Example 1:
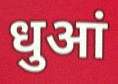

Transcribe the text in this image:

धुआं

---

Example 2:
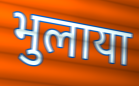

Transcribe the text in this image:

भुलाया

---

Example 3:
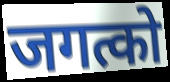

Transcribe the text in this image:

जगत्को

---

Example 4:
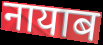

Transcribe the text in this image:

नायाब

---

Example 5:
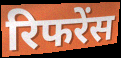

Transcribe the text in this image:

रिफरेंस